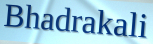
Bhadrakali